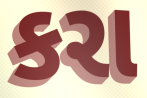
કરા